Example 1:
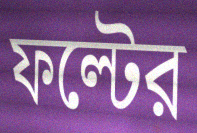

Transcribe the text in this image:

ফল্টের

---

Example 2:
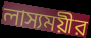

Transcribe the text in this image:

লাস্যময়ীর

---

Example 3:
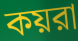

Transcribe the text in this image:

কয়রা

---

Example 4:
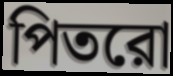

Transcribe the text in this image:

পিতরো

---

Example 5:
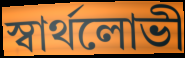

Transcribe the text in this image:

স্বার্থলোভী